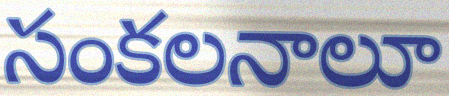
సంకలనాలూ